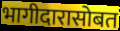
भागीदारासोबत